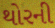
થોરની